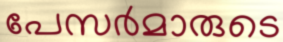
പേസർമാരുടെ